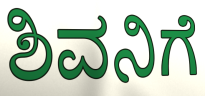
ಶಿವನಿಗೆ